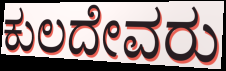
ಕುಲದೇವರು